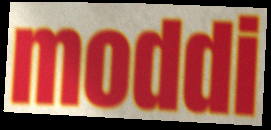
moddi